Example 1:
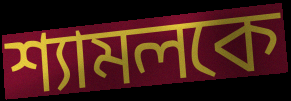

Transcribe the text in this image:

শ্যামলকে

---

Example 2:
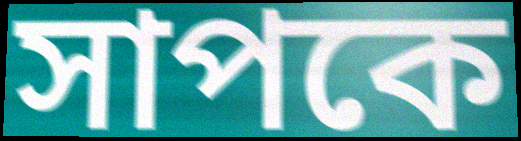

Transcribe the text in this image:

সাপকে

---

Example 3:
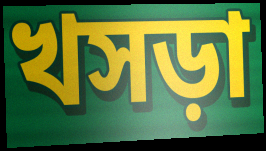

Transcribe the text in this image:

খসড়া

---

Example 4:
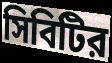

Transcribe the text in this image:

সিবিটির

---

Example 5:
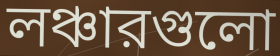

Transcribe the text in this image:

লঞ্চারগুলো